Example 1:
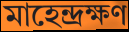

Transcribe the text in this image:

মাহেন্দ্রক্ষণ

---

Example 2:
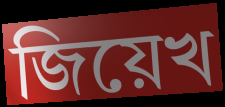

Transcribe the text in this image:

জিয়েখ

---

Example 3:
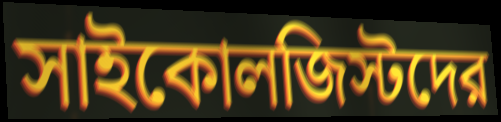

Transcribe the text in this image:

সাইকোলজিস্টদের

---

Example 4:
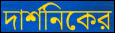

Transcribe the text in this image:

দার্শনিকের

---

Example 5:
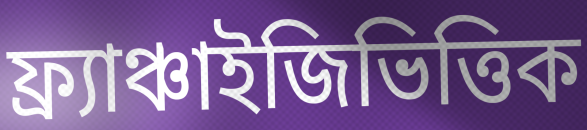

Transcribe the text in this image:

ফ্র্যাঞ্চাইজিভিত্তিক